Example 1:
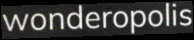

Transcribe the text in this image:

wonderopolis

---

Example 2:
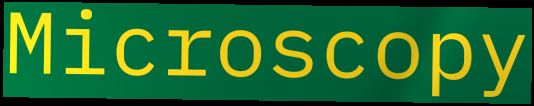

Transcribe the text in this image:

Microscopy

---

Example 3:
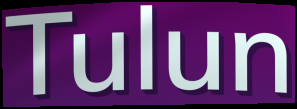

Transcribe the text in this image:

Tulun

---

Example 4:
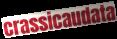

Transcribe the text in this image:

crassicaudata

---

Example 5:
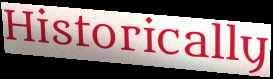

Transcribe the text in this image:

Historically